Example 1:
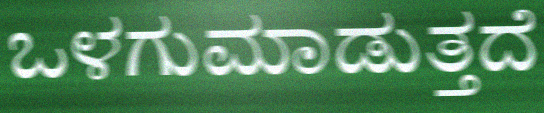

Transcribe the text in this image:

ಒಳಗುಮಾಡುತ್ತದೆ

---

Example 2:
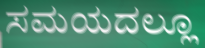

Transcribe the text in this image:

ಸಮಯದಲ್ಲೂ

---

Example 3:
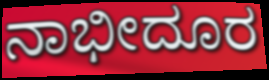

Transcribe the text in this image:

ನಾಭೀದೂರ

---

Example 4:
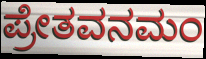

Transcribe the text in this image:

ಪ್ರೇತವನಮಂ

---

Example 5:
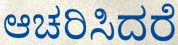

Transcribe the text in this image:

ಆಚರಿಸಿದರೆ